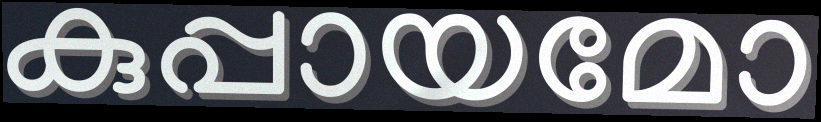
കുപ്പായമോ